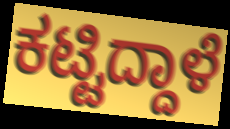
ಕಟ್ಟಿದ್ದಾಳೆ